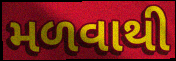
મળવાથી